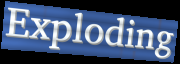
Exploding